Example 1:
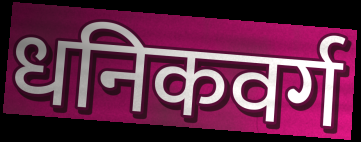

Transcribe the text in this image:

धनिकवर्ग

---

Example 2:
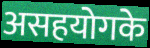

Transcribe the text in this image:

असहयोगके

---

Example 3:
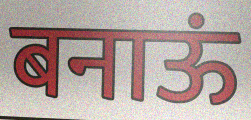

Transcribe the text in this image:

बनाऊं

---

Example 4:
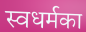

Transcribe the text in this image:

स्वधर्मका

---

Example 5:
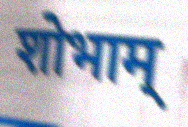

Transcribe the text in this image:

शोभाम्